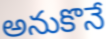
అనుకొనే